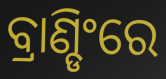
ବ୍ରାଣ୍ଡିଂରେ